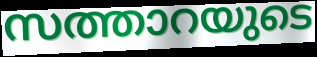
സത്താറയുടെ